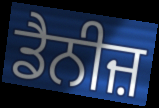
ਡੈਨੀਜ਼